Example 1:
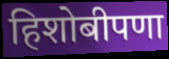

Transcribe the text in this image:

हिशोबीपणा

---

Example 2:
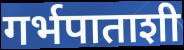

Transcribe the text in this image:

गर्भपाताशी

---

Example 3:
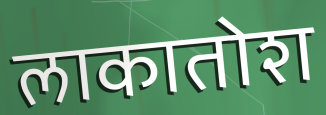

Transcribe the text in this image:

लाकातोश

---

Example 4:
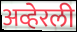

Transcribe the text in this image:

अव्हेरली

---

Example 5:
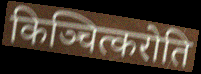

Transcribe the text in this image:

किञ्चित्करोति